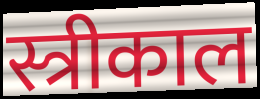
स्त्रीकाल